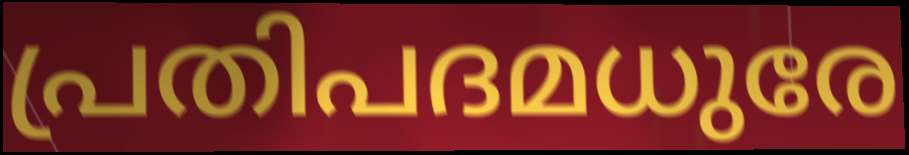
പ്രതിപദമധുരേ